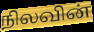
நிலவின்